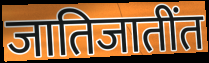
जातिजातींत